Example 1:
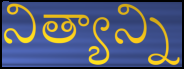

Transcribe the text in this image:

నిత్యాన్ని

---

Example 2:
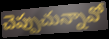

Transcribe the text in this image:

చెప్పుచున్నావో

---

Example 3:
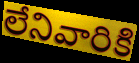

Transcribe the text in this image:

లేనివారికి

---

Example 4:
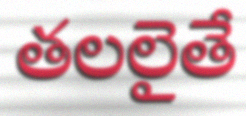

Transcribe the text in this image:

తలలైతే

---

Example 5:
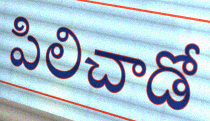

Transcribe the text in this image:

పిలిచాడో